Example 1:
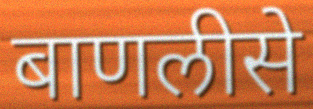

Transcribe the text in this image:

बाणलीसे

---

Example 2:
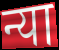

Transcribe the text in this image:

न्या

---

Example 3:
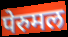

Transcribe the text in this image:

पेरुमल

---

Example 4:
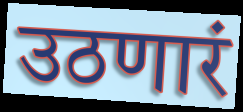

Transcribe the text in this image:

उठणारं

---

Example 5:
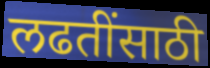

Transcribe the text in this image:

लढतींसाठी